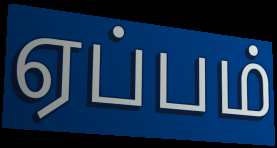
ஏப்பம்